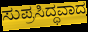
ಸುಪ್ರಸಿದ್ಧವಾದ